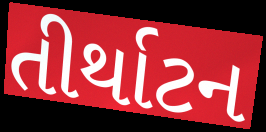
તીર્થાટન